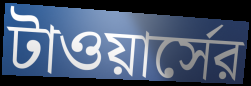
টাওয়ার্সের